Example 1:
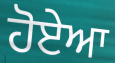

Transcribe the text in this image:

ਹੋਏਆ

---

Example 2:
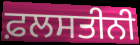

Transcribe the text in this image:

ਫ਼ਲਸਤੀਨੀ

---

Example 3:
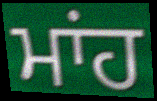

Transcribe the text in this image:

ਮਾਂਹ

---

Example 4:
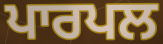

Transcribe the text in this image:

ਪਾਰਪਲ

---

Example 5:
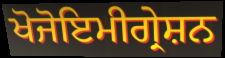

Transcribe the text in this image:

ਖੋਜੋਇਮੀਗ੍ਰੇਸ਼ਨ